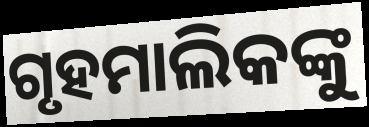
ଗୃହମାଲିକଙ୍କୁ